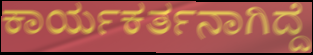
ಕಾರ್ಯಕರ್ತನಾಗಿದ್ದೆ